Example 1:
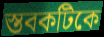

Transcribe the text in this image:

স্তবকটিকে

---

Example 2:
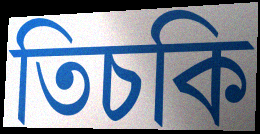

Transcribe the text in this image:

তিচকি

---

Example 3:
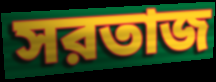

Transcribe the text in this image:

সরতাজ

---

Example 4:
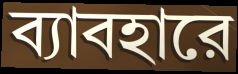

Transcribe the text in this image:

ব্যাবহারে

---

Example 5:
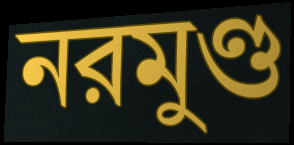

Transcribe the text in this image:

নরমুণ্ড